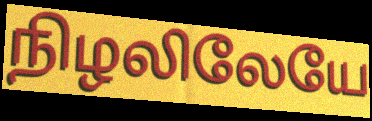
நிழலிலேயே